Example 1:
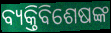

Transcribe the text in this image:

ବ୍ୟକ୍ତିବିଶେଷଙ୍କ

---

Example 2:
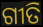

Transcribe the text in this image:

ଗୀତି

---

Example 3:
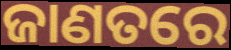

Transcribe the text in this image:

ଜାଣତରେ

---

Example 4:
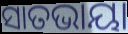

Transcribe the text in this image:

ସାତଭାୟା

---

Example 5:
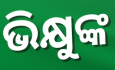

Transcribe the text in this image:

ଭିକ୍ଷୁଙ୍କ